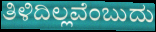
ತಿಳಿದಿಲ್ಲವೆಂಬುದು